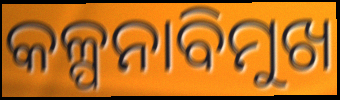
କଳ୍ପନାବିମୁଖ